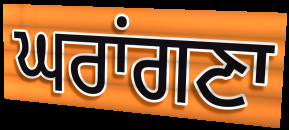
ਘਰਾਂਗਣਾ